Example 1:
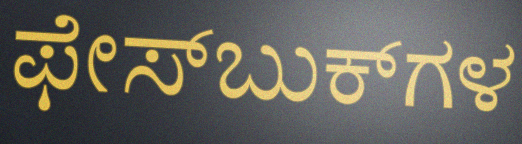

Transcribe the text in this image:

ಫೇಸ್‌ಬುಕ್‌ಗಳ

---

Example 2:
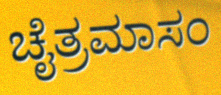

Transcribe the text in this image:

ಚೈತ್ರಮಾಸಂ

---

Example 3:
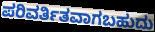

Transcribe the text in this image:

ಪರಿವರ್ತಿತವಾಗಬಹುದು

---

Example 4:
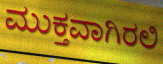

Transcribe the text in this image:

ಮುಕ್ತವಾಗಿರಲಿ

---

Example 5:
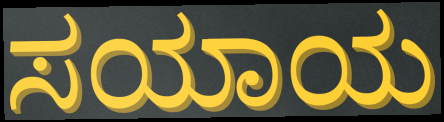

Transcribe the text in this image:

ಸಯಾಯ